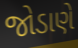
જોડાણે